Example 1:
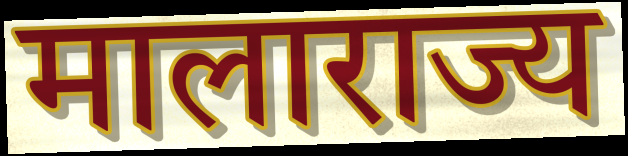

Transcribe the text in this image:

मालाराज्य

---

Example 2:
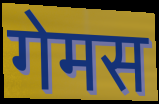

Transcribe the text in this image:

गेमस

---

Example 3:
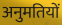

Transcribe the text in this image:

अनुमतियों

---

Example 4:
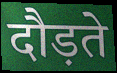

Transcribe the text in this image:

दौड़ते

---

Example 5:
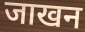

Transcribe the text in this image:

जाखन